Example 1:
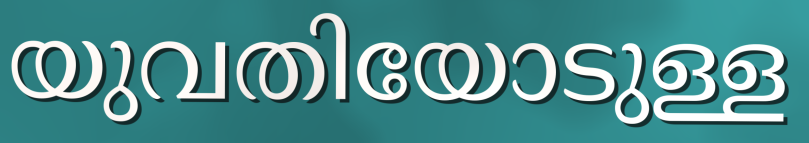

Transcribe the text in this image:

യുവതിയോടുള്ള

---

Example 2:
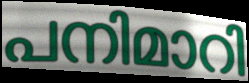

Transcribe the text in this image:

പനിമാറി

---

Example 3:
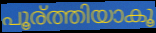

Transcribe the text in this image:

പൂര്ത്തിയാകൂ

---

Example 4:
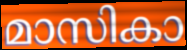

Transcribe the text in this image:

മാസികാ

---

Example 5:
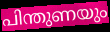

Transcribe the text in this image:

പിന്തുണയും